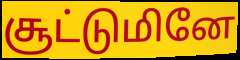
சூட்டுமினே